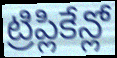
ట్రిప్లికేన్లో